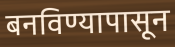
बनविण्यापासून